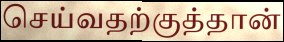
செய்வதற்குத்தான்